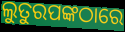
ଲୁତୁରପଙ୍କଠାରେ